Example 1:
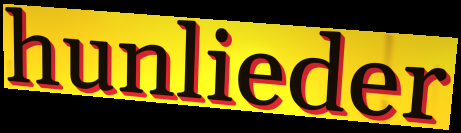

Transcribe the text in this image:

hunlieder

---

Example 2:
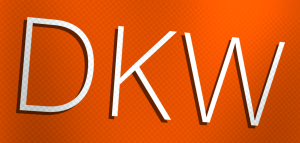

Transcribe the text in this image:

DKW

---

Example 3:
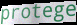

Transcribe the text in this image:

protege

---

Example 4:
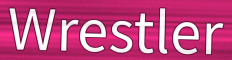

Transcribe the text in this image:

Wrestler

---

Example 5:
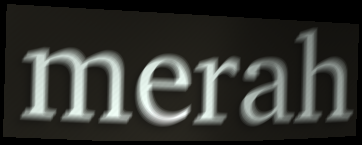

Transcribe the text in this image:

merah